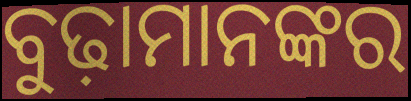
ବୁଢ଼ାମାନଙ୍କର